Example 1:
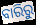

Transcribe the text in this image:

ବାରିରୁ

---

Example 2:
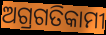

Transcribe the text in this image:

ଅଗ୍ରଗତିକାମୀ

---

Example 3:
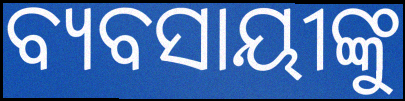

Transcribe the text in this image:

ବ୍ୟବସାୟୀଙ୍କୁ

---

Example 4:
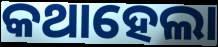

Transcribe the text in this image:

କଥାହେଲା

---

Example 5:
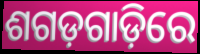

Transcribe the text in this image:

ଶଗଡ଼ଗାଡ଼ିରେ